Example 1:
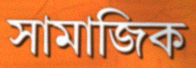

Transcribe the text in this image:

সামাজিক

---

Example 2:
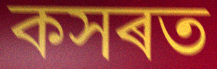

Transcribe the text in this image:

কসৰত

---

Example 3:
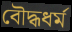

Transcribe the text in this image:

বৌদ্ধধৰ্ম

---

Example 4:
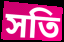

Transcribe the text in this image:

সতি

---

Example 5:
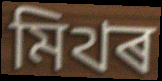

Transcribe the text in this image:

মিথৰ